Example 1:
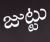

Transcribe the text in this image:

జుట్టు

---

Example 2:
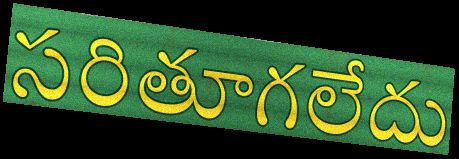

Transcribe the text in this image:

సరితూగలేదు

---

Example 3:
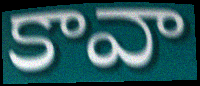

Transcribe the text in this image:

కావా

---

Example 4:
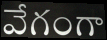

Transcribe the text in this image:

వేగంగా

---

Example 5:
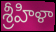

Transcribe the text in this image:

శ్రీహిళా